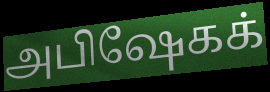
அபிஷேகக்